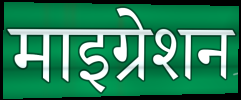
माइग्रेशन